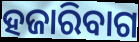
ହଜାରିବାଗ